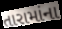
તારામાંના